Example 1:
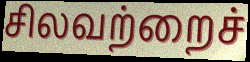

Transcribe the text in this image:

சிலவற்றைச்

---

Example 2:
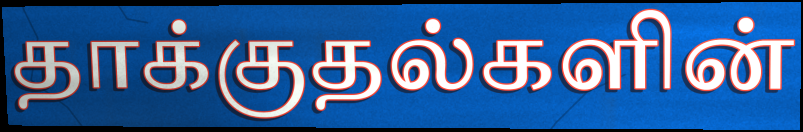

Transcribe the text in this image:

தாக்குதல்களின்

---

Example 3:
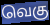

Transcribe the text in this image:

வெகு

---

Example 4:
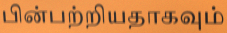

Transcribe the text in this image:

பின்பற்றியதாகவும்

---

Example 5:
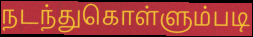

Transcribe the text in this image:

நடந்துகொள்ளும்படி